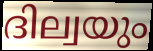
ദില്വയും